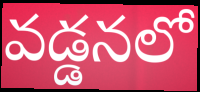
వడ్డనలో